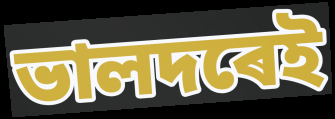
ভালদৰেই